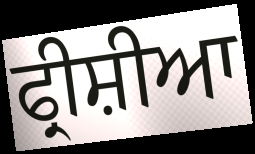
ਫ੍ਰੀਸ਼ੀਆ